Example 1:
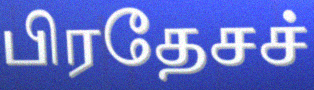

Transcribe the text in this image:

பிரதேசச்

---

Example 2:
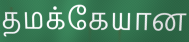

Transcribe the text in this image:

தமக்கேயான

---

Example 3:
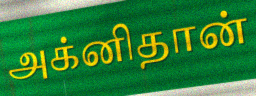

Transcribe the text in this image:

அக்னிதான்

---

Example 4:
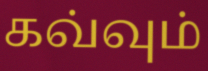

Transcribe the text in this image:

கவ்வும்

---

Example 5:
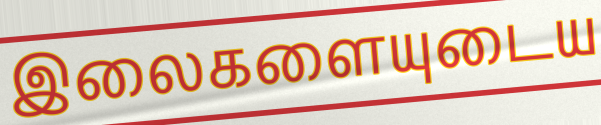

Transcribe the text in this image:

இலைகளையுடைய